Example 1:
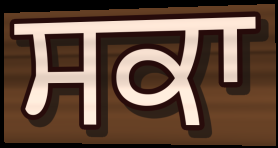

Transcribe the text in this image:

ਸਕਾ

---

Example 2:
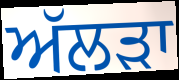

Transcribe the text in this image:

ਅੱਲੜਾ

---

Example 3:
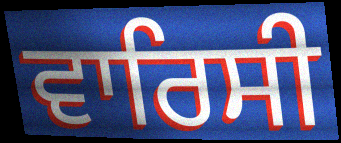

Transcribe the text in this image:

ਵਾਰਿਸੀ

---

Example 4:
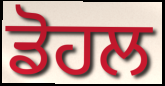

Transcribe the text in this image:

ਡੋਹਲ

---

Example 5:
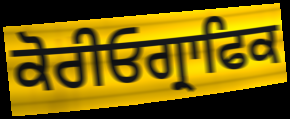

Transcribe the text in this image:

ਕੋਰੀਓਗ੍ਰਾਫਿਕ